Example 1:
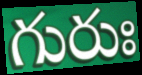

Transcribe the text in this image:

గురుః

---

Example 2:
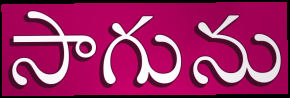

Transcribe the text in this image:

సాగును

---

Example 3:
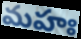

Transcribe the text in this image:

మహః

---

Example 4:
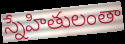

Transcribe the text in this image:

స్నేహితులంతా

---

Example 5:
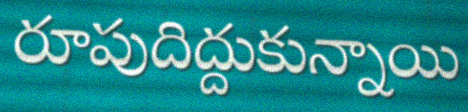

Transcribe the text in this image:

రూపుదిద్దుకున్నాయి